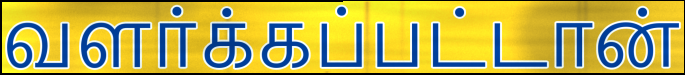
வளர்க்கப்பட்டான்